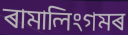
ৰামালিংগমৰ